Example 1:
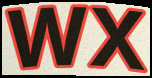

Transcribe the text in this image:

WX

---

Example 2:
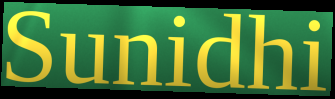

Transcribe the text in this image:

Sunidhi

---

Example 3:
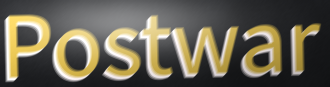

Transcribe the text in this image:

Postwar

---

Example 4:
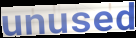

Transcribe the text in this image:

unused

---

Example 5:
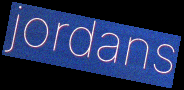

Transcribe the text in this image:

jordans